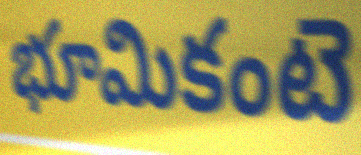
భూమికంటె